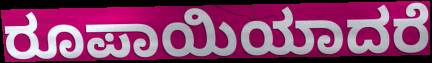
ರೂಪಾಯಿಯಾದರೆ